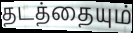
தடத்தையும்